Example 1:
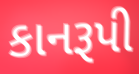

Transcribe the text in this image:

કાનરૂપી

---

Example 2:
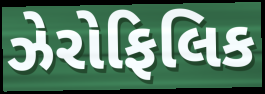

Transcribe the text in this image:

ઝેરોફિલિક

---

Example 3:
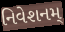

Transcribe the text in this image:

નિવેશનમ્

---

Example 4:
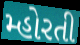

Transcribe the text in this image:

મ્હોરતી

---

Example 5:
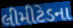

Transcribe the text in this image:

લીમીટેડના